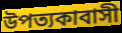
উপত্যকাবাসী